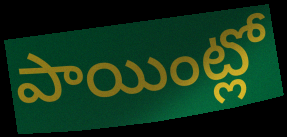
పాయింట్లో